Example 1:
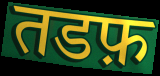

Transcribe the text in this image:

तडफ़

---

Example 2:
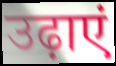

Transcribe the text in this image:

उढ़ाएं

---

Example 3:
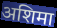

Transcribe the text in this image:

अशिमा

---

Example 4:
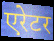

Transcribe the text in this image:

एरेटर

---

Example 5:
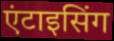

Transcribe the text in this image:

एंटाइसिंग